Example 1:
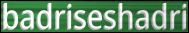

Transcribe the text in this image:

badriseshadri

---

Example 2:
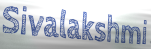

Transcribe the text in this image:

Sivalakshmi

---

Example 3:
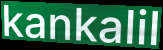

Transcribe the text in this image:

kankalil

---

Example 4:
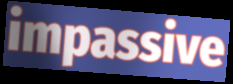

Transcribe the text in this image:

impassive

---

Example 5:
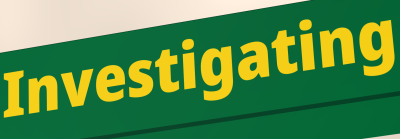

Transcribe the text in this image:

Investigating